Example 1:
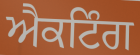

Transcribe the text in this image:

ਐਕਟਿੰਗ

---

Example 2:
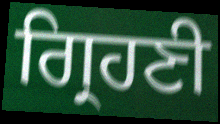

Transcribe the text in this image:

ਗ੍ਰਿਹਣੀ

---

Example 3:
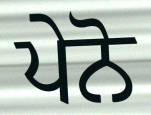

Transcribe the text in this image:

ਪੇਨੋ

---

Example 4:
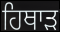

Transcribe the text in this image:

ਹਿਥਾੜ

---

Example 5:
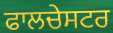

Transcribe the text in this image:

ਫਾਲਚੇਸਟਰ